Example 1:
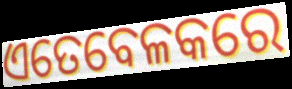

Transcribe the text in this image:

ଏତେବେଳକରେ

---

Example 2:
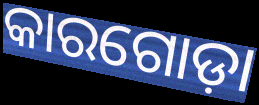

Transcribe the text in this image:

କାରଗୋଡ଼ା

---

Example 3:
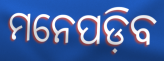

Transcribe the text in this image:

ମନେପଡ଼ିବ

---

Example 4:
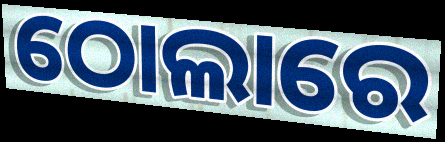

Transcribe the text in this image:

ଠୋଲାରେ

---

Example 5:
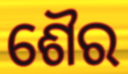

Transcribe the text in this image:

ଶୈର